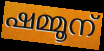
ഷമ്മൂന്